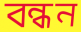
বন্ধন